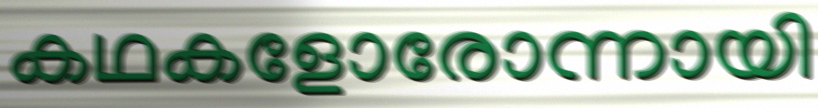
കഥകളോരോന്നായി